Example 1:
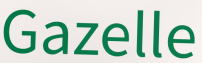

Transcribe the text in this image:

Gazelle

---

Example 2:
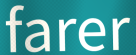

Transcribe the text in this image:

farer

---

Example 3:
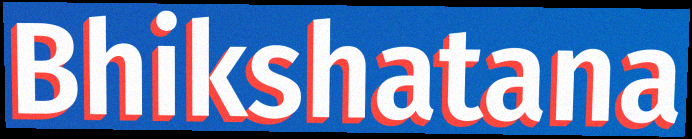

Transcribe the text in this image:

Bhikshatana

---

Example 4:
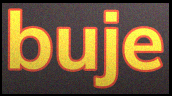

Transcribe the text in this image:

buje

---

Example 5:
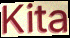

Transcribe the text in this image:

Kita